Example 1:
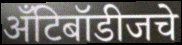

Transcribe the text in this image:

अँटिबॉडीजचे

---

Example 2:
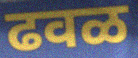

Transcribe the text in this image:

ढवळ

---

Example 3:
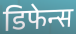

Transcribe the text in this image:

डिफेन्स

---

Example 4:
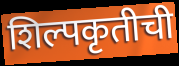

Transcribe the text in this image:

शिल्पकृतीची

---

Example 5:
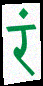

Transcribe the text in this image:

रं